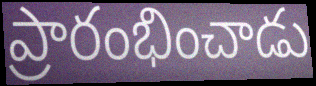
ప్రారంభించాడు